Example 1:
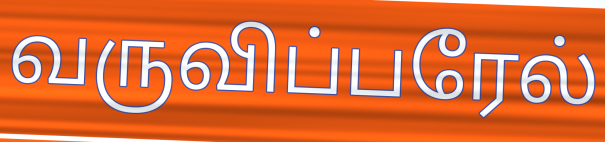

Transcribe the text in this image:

வருவிப்பரேல்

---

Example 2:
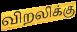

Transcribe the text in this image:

விறலிக்கு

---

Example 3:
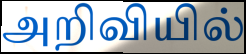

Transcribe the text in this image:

அறிவியில்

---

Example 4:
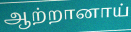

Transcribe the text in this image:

ஆற்றானாய்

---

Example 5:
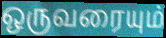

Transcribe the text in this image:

ஒருவரையும்